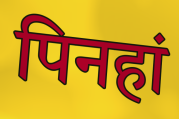
पिनहां